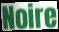
Noire